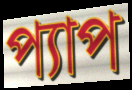
প্যাপ